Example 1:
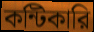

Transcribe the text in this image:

কন্টিকারি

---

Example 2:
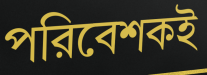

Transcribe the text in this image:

পরিবেশকই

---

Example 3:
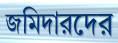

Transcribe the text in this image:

জমিদারদের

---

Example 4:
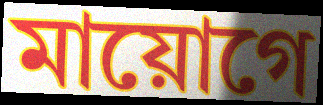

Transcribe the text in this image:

মায়োগে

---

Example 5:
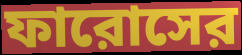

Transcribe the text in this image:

ফারোসের